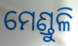
ମେଣ୍ଡୁଳି